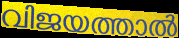
വിജയത്താൽ